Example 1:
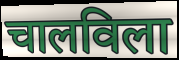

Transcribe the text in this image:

चालविला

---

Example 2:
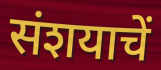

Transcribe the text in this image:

संशयाचें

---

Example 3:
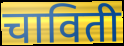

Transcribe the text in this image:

चाविती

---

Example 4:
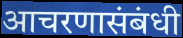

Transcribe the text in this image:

आचरणासंबंधी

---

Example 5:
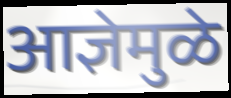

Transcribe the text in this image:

आज्ञेमुळे